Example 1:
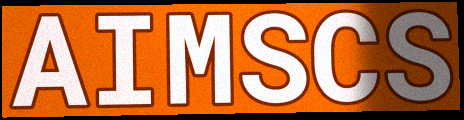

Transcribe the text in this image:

AIMSCS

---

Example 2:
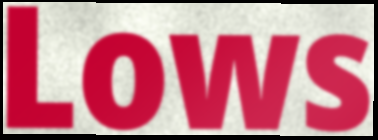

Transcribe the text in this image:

Lows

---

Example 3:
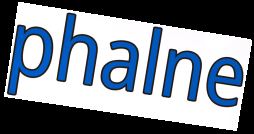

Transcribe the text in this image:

phalne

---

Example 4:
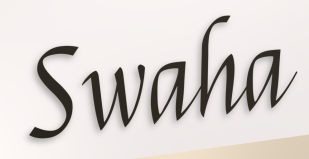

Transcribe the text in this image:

Swaha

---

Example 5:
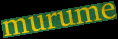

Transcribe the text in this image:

murume